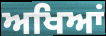
ਅਖਿਆਂ